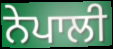
ਨੇਪਾਲੀ